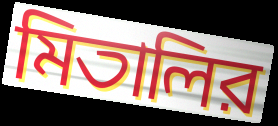
মিতালির